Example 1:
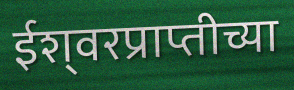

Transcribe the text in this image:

ईश्वरप्राप्तीच्या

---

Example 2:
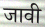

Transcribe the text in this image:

जावी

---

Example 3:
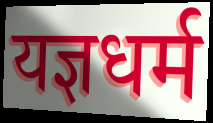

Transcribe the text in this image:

यज्ञधर्म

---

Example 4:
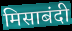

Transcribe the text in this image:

मिसाबंदी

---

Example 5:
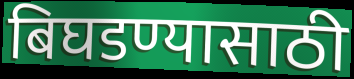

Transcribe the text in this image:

बिघडण्यासाठी